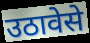
उठावेसे